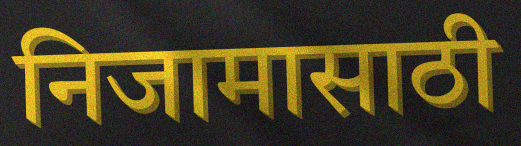
निजामासाठी